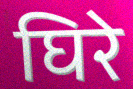
घिरे